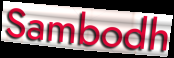
Sambodh